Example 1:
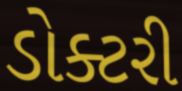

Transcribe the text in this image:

ડોક્ટરી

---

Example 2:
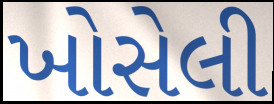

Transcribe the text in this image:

ખોસેલી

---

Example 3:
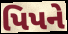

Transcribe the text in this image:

પિપને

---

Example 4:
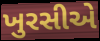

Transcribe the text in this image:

ખુરસીએ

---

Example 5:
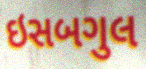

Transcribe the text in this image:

ઇસબગુલ